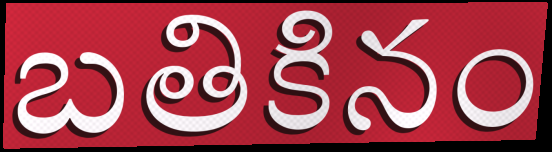
బతికినం